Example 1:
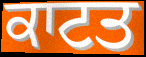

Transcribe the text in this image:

ਕਾਟਤ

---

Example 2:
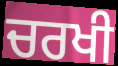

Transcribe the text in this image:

ਚਰਖੀ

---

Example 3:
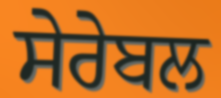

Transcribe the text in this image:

ਸੇਰੇਬਲ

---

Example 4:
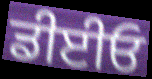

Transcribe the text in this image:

ਡੀਈਓ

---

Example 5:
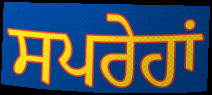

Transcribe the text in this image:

ਸਪਰੇਹਾਂ